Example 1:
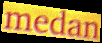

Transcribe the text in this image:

medan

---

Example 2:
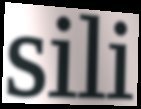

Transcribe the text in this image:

sili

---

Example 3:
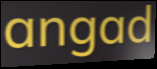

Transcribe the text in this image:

angad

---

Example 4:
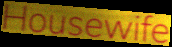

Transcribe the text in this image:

Housewife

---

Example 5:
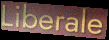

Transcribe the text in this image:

Liberale